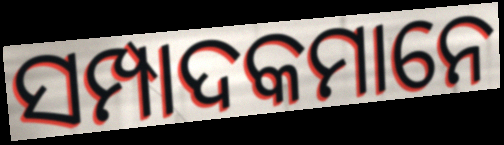
ସମ୍ପାଦକମାନେ